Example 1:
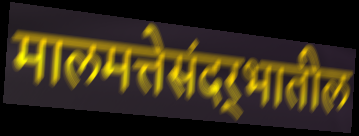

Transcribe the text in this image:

मालमत्तेसंदर्भातील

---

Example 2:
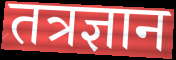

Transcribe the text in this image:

तत्रज्ञान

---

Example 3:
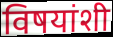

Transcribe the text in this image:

विषयांशी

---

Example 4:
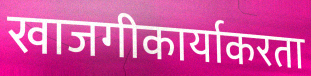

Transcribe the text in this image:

खाजगीकार्याकरता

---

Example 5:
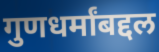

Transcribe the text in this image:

गुणधर्मांबद्दल